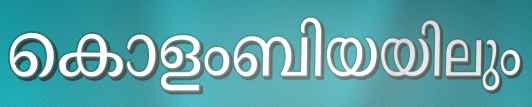
കൊളംബിയയിലും